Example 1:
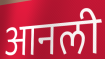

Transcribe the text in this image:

आनली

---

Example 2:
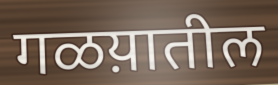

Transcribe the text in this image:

गळय़ातील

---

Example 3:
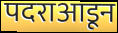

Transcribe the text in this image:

पदराआडून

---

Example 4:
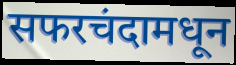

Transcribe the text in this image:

सफरचंदामधून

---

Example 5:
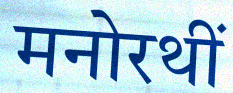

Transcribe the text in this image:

मनोरथीं